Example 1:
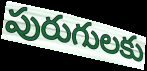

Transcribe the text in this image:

పురుగులకు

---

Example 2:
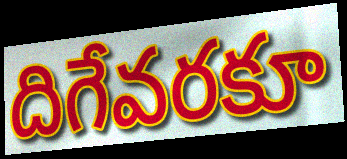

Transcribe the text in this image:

దిగేవరకూ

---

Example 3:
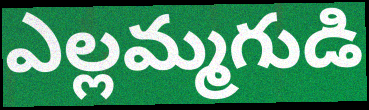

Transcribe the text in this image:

ఎల్లమ్మగుడి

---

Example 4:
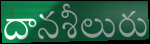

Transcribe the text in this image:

దానశీలురు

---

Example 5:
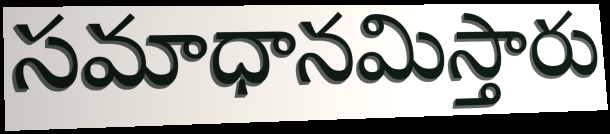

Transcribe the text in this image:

సమాధానమిస్తారు